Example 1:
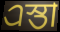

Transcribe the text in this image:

এস্তা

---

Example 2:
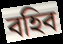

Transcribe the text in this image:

বহিব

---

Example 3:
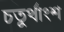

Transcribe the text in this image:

চতুর্থাংশ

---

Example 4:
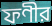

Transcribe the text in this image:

ফণীর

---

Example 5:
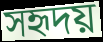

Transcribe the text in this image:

সহৃদয়